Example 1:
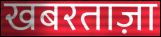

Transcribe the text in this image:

खबरताज़ा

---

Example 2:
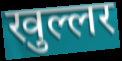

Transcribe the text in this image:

खुल्लर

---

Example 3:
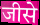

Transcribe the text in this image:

जीसे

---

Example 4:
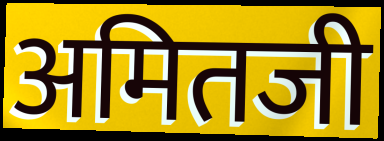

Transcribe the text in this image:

अमितजी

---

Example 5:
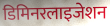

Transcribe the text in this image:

डिमिनरलाइजेशन